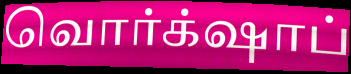
வொர்க்‌ஷாப்